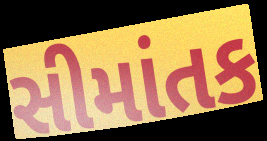
સીમાંતક